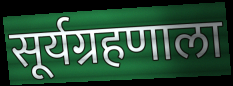
सूर्यग्रहणाला